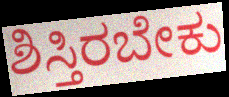
ಶಿಸ್ತಿರಬೇಕು